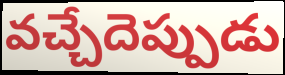
వచ్చేదెప్పుడు